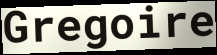
Gregoire